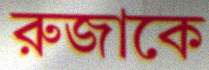
রুজাকে